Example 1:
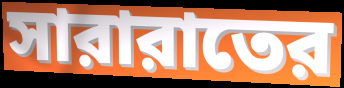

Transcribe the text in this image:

সারারাতের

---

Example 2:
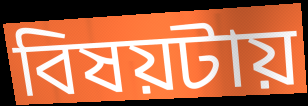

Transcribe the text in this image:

বিষয়টায়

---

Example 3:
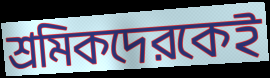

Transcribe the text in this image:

শ্রমিকদেরকেই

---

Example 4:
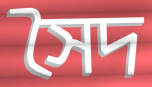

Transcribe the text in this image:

সৈদ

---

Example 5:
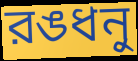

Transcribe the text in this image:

রঙধনু